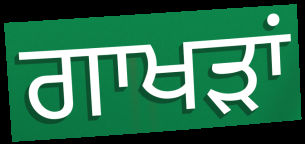
ਗਾਖੜਾਂ